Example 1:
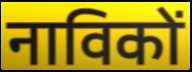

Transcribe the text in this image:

नाविकों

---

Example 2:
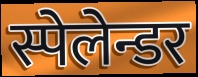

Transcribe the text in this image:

स्पेलेन्डर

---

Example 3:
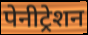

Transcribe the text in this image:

पेनीट्रेशन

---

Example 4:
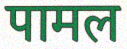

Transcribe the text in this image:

पामल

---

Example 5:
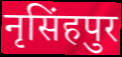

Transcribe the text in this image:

नृसिंहपुर